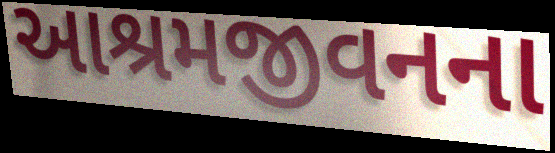
આશ્રમજીવનના